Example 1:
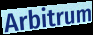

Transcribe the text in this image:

Arbitrum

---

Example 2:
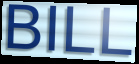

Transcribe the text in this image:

BILL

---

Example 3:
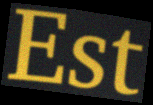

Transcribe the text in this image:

Est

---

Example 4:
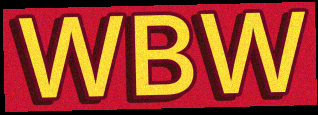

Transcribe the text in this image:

WBW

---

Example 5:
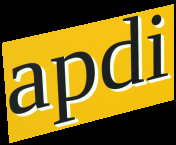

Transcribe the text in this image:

apdi